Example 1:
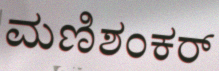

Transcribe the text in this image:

ಮಣಿಶಂಕರ್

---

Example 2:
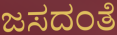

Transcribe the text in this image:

ಜಸದಂತೆ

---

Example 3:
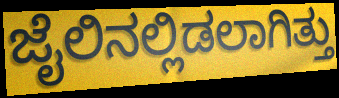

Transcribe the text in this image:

ಜೈಲಿನಲ್ಲಿಡಲಾಗಿತ್ತು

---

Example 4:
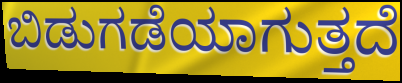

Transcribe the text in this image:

ಬಿಡುಗಡೆಯಾಗುತ್ತದೆ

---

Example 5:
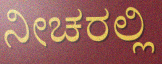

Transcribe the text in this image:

ನೀಚರಲ್ಲಿ